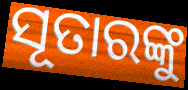
ସୂତାରଙ୍କୁ